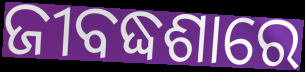
ଜୀବଦ୍ଧଶାରେ